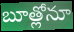
బూత్లోనూ